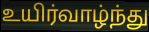
உயிர்வாழ்ந்து